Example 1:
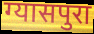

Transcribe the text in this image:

ग्यासपुरा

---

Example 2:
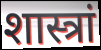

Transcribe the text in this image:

शास्त्रां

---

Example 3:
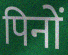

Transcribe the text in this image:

पिनों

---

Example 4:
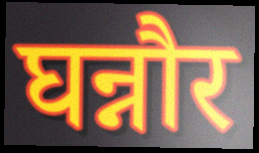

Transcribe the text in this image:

घन्नौर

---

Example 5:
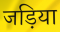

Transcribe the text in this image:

जड़िया